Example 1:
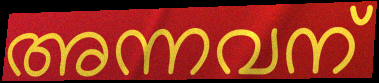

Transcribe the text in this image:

അന്നവന്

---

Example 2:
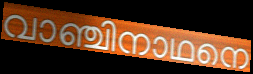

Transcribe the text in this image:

വാഞ്ചിനാഥനെ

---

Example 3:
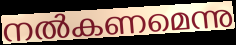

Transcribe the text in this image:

നൽകണമെന്നു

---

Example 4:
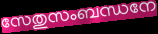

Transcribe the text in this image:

സേതുസംബന്ധനേ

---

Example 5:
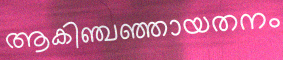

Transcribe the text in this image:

ആകിഞ്ചഞ്ഞായതനം